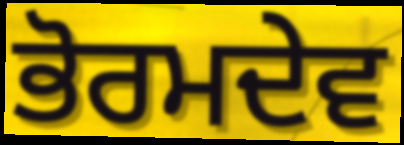
ਭੋਰਮਦੇਵ